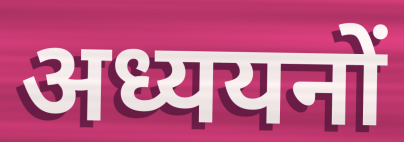
अध्ययनों